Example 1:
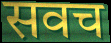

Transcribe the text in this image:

सवच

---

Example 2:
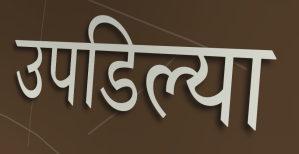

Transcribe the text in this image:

उपडिल्या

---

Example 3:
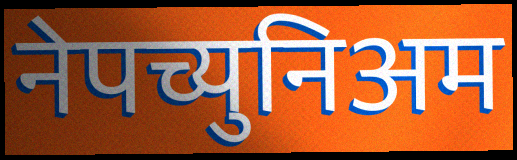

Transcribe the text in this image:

नेपच्युनिअम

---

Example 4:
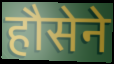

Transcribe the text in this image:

हौसेने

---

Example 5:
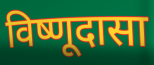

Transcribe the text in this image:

विष्णूदासा